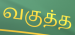
வகுத்த